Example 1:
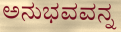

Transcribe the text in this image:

ಅನುಭವವನ್ನ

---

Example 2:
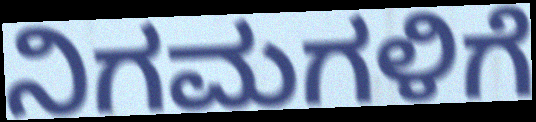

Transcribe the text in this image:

ನಿಗಮಗಳಿಗೆ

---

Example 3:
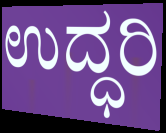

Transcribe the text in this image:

ಉದ್ಧರಿ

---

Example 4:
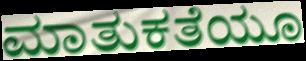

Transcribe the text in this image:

ಮಾತುಕತೆಯೂ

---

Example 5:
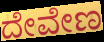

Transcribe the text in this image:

ದೇವೇಣ